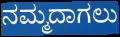
ನಮ್ಮದಾಗಲು